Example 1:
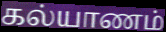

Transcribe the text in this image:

கல்யாணம்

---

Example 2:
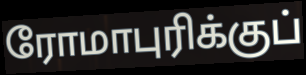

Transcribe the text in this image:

ரோமாபுரிக்குப்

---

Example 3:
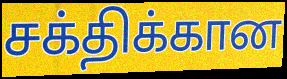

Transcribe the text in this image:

சக்திக்கான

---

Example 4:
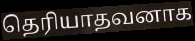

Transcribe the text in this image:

தெரியாதவனாக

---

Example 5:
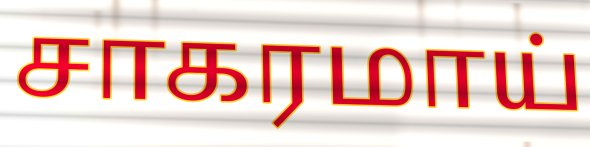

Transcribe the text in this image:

சாகரமாய்